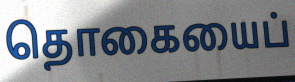
தொகையைப்